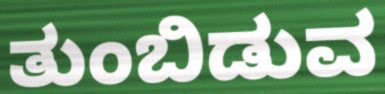
ತುಂಬಿಡುವ